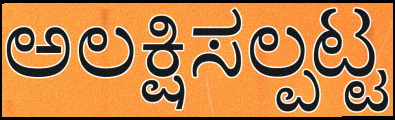
ಅಲಕ್ಷಿಸಲ್ಪಟ್ಟ